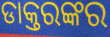
ଡାକ୍ତରଙ୍କର